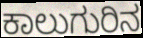
ಕಾಲುಗುರಿನ